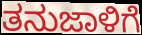
ತನುಜಾಳಿಗೆ